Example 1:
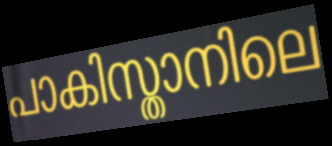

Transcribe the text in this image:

പാകിസ്താനിലെ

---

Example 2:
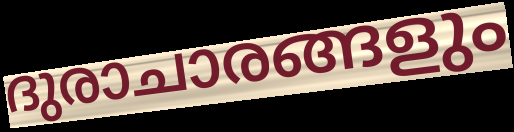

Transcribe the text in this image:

ദുരാചാരങ്ങളും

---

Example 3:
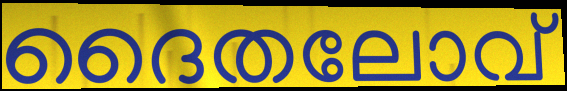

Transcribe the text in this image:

ദൈതലോവ്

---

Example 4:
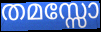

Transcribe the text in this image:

തമസ്സോ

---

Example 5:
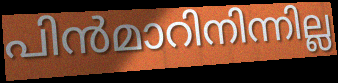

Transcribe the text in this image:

പിൻമാറിനിന്നില്ല